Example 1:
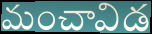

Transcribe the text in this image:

మంచావిడ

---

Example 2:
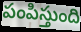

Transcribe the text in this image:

పంపిస్తుంది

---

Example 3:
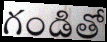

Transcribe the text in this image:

గండితో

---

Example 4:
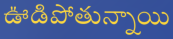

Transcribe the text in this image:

ఊడిపోతున్నాయి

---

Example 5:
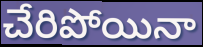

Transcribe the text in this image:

చేరిపోయినా